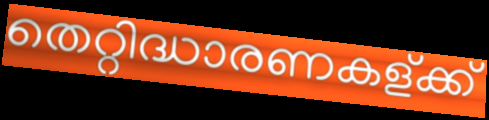
തെറ്റിദ്ധാരണകള്ക്ക്